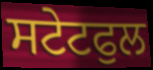
ਸਟੇਟਫੁਲ